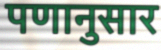
पणानुसार